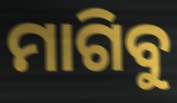
ମାଗିବୁ